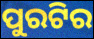
ପୁରଟିର